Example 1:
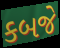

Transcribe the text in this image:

કબજે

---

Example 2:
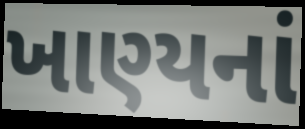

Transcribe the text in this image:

ખાણ્યનાં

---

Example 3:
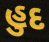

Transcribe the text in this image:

હુદ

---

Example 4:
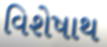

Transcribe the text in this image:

વિશેષાથ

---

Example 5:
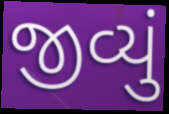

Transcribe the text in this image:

જીવ્યું